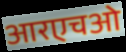
आरएचओ